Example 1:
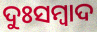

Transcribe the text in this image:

ଦୁଃସମ୍ବାଦ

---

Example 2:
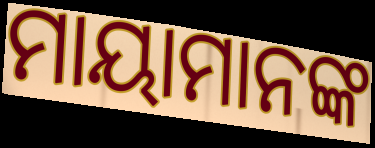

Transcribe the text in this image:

ମାୟାମାନଙ୍କ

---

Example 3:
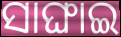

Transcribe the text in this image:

ସାଙ୍ଘାଇ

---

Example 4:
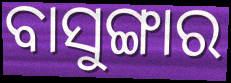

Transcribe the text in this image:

ବାସୁଙ୍ଗାର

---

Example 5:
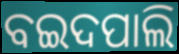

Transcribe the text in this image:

ବଇଦପାଲି